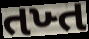
તખ્ત